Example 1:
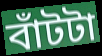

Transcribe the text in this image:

বাঁটটা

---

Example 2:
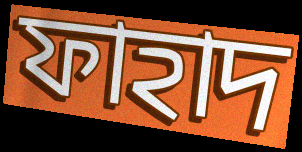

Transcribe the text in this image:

ফাহাদ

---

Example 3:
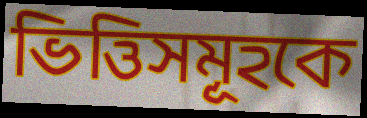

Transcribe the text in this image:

ভিত্তিসমূহকে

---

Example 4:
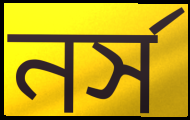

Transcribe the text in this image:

নর্স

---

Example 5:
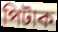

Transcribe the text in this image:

পিটাক